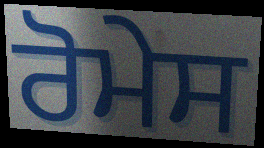
ਰੋਮੇਸ